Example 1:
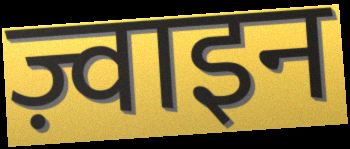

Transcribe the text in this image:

ज़्वाइन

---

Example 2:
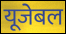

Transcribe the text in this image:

यूजेबल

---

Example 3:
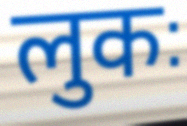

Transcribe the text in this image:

लुकः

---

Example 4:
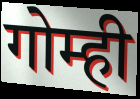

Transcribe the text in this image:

गोम्ही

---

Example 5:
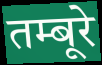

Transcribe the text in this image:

तम्बूरे